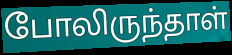
போலிருந்தாள்